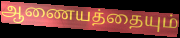
ஆணையத்தையும்